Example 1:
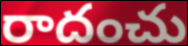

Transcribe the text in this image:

రాదంచు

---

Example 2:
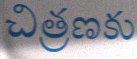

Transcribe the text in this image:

చిత్రణకు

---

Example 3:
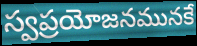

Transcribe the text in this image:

స్వప్రయోజనమునకే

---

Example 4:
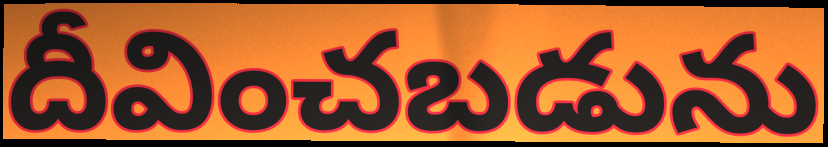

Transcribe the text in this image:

దీవించబడును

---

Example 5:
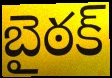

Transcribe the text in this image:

బైఠక్